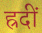
ह्रदीं